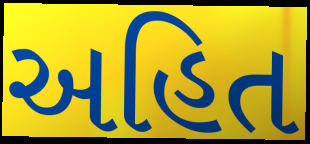
અહિત